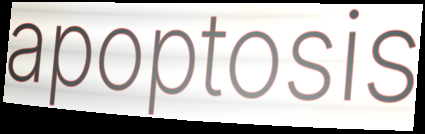
apoptosis